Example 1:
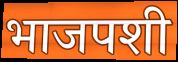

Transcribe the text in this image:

भाजपशी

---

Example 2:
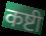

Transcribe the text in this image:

कष्टी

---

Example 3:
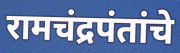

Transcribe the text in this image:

रामचंद्रपंतांचे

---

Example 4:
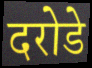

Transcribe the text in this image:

दरोडे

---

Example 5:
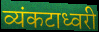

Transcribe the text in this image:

व्यंकटाध्वरी